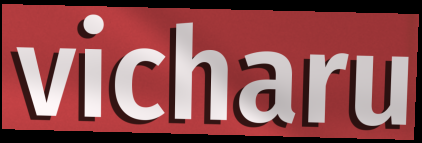
vicharu